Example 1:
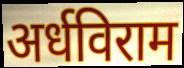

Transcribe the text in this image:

अर्धविराम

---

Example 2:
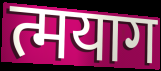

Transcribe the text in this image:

त्मयाग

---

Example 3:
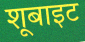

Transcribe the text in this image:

शूबाइट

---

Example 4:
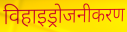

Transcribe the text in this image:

विहाइड्रोजनीकरण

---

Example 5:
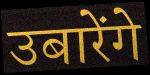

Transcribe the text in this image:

उबारेंगे